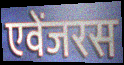
एवेंजरस